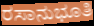
ರಸಾನುಭೂತಿ